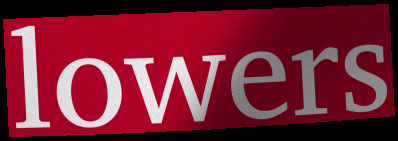
lowers